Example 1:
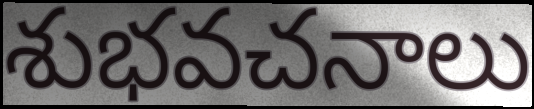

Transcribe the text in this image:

శుభవచనాలు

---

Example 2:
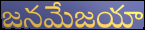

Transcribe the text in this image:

జనమేజయా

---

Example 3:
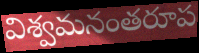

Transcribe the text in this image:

విశ్వమనంతరూప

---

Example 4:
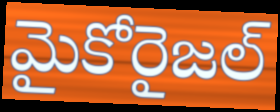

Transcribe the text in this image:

మైకోరైజల్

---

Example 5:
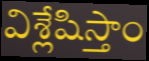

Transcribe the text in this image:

విశ్లేషిస్తాం